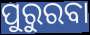
ପୁରୁରବା